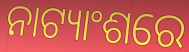
ନାଟ୍ୟାଂଶରେ